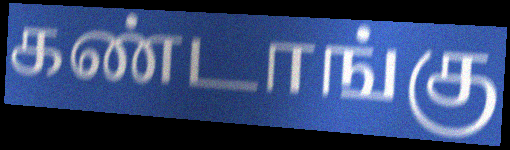
கண்டாங்கு